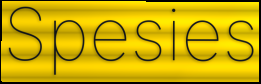
Spesies